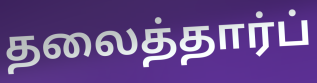
தலைத்தார்ப்